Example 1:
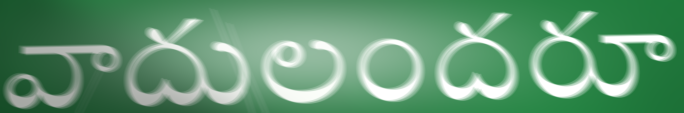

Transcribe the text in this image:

వాదులందరూ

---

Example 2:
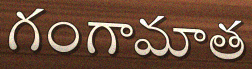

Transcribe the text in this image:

గంగామాత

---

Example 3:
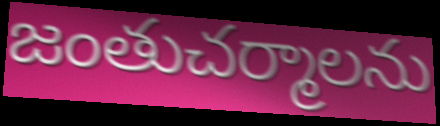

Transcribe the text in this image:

జంతుచర్మాలను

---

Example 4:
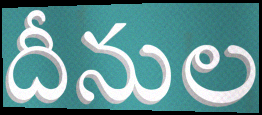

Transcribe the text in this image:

దీనుల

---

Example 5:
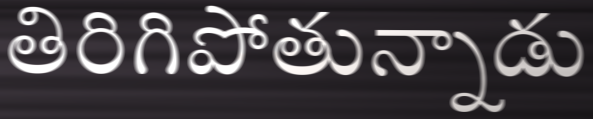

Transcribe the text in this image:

తిరిగిపోతున్నాడు